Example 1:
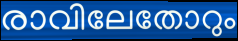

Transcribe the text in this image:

രാവിലേതോറും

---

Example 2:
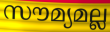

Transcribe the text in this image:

സൗമ്യമല്ല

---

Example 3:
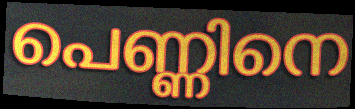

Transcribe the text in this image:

പെണ്ണിനെ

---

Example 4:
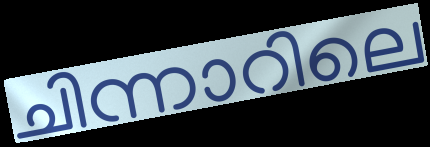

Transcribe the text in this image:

ചിന്നാറിലെ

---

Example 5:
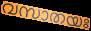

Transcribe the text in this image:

വസാതയഃ